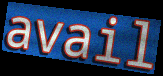
avail